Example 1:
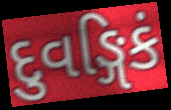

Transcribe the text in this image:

દુવઙ્ગિકં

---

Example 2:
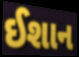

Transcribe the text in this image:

ઈશાન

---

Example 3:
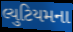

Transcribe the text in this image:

લ્યુટિયમના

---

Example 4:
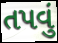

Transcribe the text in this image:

તપવું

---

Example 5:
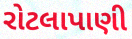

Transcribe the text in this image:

રોટલાપાણી